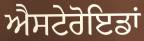
ਐਸਟੇਰੋਇਡਾਂ